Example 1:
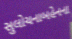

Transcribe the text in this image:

સુલોચનાબહેનના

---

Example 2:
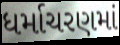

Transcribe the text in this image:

ધર્માચરણમાં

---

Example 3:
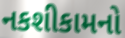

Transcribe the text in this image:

નકશીકામનો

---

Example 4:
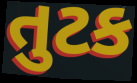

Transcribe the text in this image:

તુટક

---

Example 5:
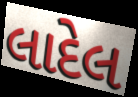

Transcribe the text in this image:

લાદેલ